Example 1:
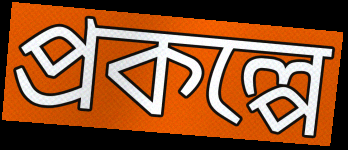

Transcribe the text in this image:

প্রকল্পে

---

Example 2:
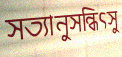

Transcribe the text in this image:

সত্যানুসন্ধিৎসু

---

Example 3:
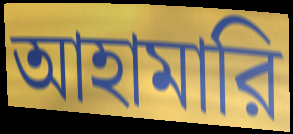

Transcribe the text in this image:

আহামারি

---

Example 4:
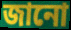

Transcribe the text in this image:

জানো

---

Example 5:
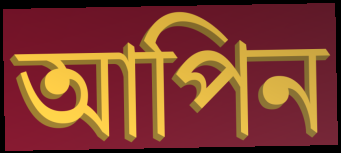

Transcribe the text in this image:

আপিন